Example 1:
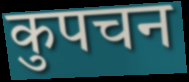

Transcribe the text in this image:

कुपचन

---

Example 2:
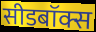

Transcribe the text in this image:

सीडबॉक्स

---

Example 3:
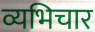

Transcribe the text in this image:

व्यभिचार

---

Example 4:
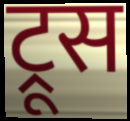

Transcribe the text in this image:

ट्रूस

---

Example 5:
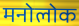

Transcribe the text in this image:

मनोलोक